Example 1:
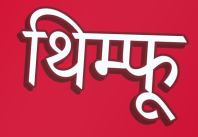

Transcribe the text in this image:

थिम्फू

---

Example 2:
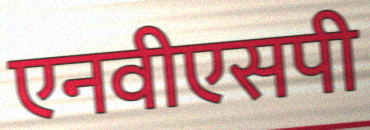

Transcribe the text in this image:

एनवीएसपी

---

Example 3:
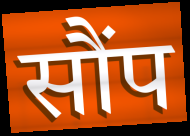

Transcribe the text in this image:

सौंप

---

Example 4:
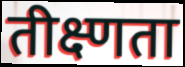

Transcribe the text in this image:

तीक्ष्णता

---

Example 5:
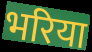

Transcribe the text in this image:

भरिया